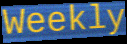
Weekly